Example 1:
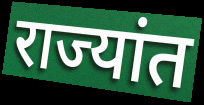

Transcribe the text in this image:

राज्यांत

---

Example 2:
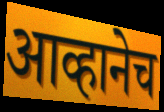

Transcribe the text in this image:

आव्हानेच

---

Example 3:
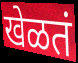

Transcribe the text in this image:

खेळतं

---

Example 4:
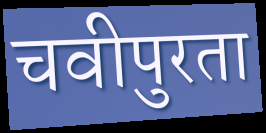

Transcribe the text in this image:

चवीपुरता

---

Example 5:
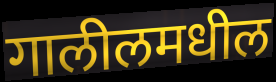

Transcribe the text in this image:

गालीलमधील